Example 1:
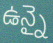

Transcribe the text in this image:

ఉన్నై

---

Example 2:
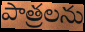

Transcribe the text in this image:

పాత్రలను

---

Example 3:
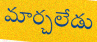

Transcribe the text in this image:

మార్చలేడు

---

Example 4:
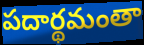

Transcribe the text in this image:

పదార్థమంతా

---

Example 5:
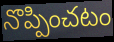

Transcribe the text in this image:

నొప్పించటం